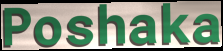
Poshaka